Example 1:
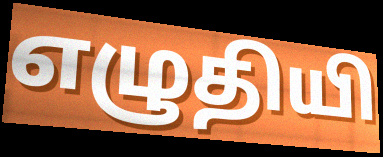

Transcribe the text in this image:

எழுதியி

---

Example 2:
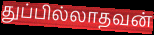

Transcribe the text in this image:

துப்பில்லாதவன்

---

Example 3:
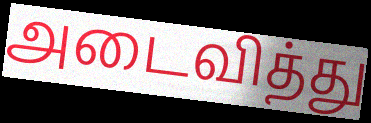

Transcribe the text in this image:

அடைவித்து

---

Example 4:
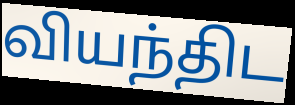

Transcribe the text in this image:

வியந்திட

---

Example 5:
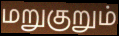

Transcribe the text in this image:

மறுகுறும்